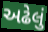
અઢેલું